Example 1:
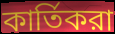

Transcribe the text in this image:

কার্তিকরা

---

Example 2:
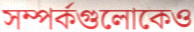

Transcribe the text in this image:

সম্পর্কগুলোকেও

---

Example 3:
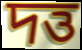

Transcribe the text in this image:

দত্ত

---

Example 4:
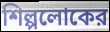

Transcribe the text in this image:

শিল্পলোকের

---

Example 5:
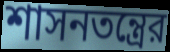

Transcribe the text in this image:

শাসনতন্ত্রের